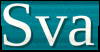
Sva